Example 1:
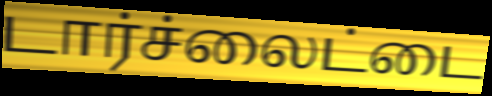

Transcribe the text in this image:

டார்ச்லைட்டை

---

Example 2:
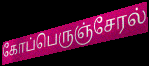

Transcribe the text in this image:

கோப்பெருஞ்சேரல்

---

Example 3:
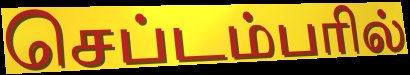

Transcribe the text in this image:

செப்டம்பரில்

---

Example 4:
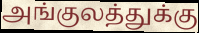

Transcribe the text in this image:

அங்குலத்துக்கு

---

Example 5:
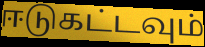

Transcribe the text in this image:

ஈடுகட்டவும்